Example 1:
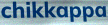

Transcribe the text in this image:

chikkappa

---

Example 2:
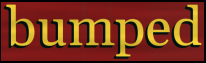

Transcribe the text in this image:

bumped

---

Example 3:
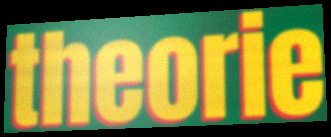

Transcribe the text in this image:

theorie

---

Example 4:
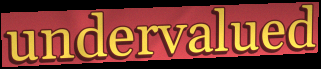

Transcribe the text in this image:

undervalued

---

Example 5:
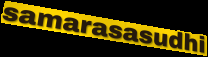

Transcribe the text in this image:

samarasasudhi